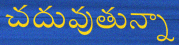
చదువుతున్నా